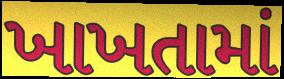
ખાખતામાં